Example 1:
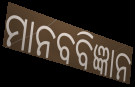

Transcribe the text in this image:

ମାନବବିଜ୍ଞାନ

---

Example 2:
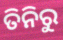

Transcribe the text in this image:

ତିନିରୁ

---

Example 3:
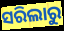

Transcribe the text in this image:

ସରିଲାରୁ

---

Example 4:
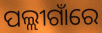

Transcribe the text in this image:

ପଲ୍ଲୀଗାଁରେ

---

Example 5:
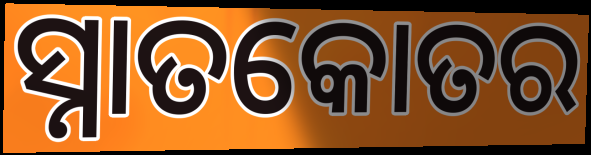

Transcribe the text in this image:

ସ୍ନାତକୋତର